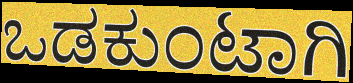
ಒಡಕುಂಟಾಗಿ